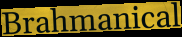
Brahmanical